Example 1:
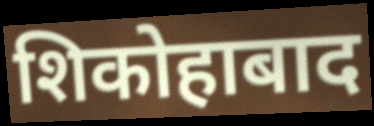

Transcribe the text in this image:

शिकोहाबाद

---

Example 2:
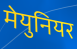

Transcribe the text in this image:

मेयुनियर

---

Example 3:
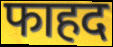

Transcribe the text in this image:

फाहद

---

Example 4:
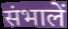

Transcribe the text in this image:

संभालें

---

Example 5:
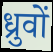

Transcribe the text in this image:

ध्रुवों